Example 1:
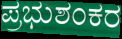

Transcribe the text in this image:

ಪ್ರಭುಶಂಕರ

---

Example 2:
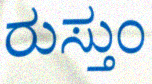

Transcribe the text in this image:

ರುಸ್ತುಂ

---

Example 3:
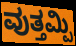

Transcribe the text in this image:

ವುತ್ತಮ್ಪಿ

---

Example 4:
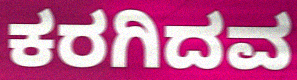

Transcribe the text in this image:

ಕರಗಿದವ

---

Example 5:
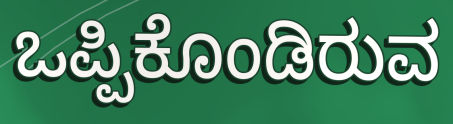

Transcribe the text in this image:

ಒಪ್ಪಿಕೊಂಡಿರುವ